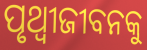
ପୃଥ୍ୱୀଜୀବନକୁ